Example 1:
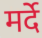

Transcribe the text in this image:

मर्दे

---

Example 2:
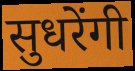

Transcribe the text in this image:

सुधरेंगी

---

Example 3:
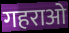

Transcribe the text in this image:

गहराओ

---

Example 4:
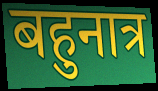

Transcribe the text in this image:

बहुनात्र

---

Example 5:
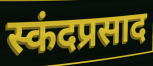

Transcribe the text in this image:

स्कंदप्रसाद